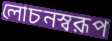
লোচনস্বরূপ